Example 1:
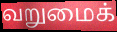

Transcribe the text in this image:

வறுமைக்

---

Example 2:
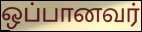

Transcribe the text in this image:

ஒப்பானவர்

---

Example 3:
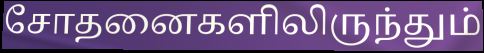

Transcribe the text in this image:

சோதனைகளிலிருந்தும்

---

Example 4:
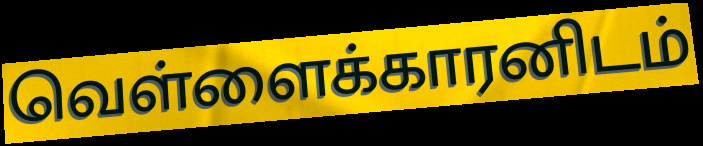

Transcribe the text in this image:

வெள்ளைக்காரனிடம்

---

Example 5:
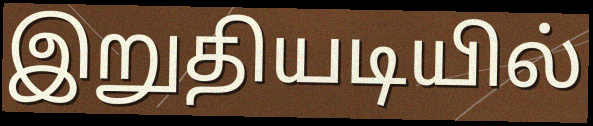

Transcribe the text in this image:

இறுதியடியில்